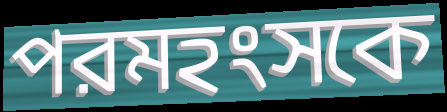
পরমহংসকে